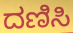
ದಣಿಸಿ